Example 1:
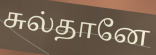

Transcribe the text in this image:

சுல்தானே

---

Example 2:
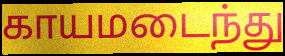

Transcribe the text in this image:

காயமடைந்து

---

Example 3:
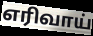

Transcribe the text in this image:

எரிவாய்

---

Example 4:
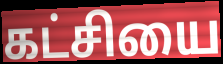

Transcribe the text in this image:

கட்சியை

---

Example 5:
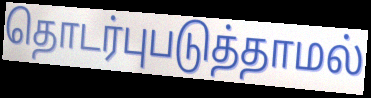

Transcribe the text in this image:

தொடர்புபடுத்தாமல்